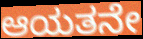
ಆಯತನೇ